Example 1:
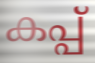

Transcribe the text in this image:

കപ്പ്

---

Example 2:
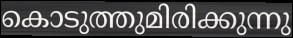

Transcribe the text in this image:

കൊടുത്തുമിരിക്കുന്നു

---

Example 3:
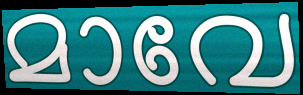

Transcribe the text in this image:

മാവേ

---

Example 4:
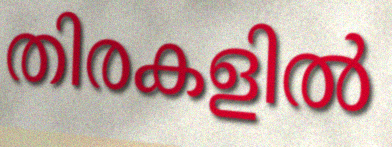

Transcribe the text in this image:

തിരകളിൽ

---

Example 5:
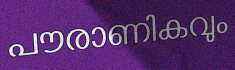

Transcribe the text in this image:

പൗരാണികവും